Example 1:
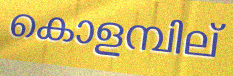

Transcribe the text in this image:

കൊളമ്പില്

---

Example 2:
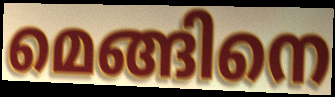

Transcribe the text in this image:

മെങ്ങിനെ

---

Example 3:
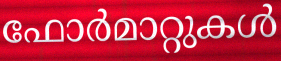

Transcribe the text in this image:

ഫോർമാറ്റുകൾ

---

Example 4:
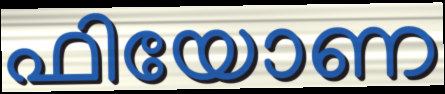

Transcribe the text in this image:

ഫിയോണ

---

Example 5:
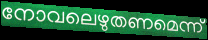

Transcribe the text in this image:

നോവലെഴുതണമെന്ന്